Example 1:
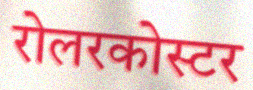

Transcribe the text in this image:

रोलरकोस्टर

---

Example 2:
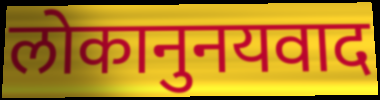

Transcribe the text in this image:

लोकानुनयवाद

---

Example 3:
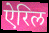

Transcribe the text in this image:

ऐरिल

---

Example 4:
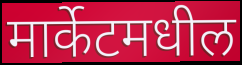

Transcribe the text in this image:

मार्केटमधील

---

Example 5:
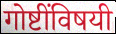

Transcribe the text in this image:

गोष्टींविषयी